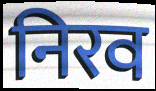
निरव